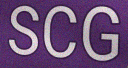
SCG